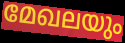
മേഖലയും